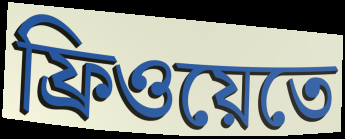
ফ্রিওয়েতে